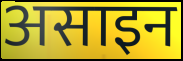
असाइन